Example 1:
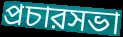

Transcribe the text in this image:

প্রচারসভা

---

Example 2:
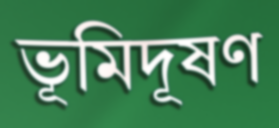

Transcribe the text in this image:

ভূমিদূষণ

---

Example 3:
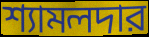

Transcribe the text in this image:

শ্যামলদার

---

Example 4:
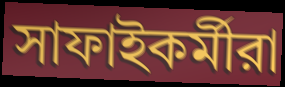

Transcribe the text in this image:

সাফাইকর্মীরা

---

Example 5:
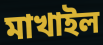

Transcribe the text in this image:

মাখাইল